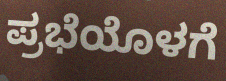
ಪ್ರಭೆಯೊಳಗೆ